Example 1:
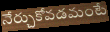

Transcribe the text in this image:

నేర్చుకోవడమంటే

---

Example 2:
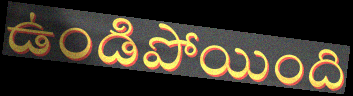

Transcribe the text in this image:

ఉండిపోయింది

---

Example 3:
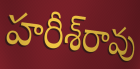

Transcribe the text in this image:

హరీశ్‌రావు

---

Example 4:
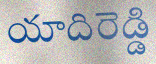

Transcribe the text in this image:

యాదిరెడ్డి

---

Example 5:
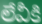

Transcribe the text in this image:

లేవీకి